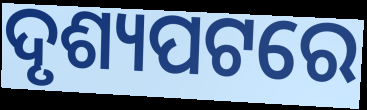
ଦୃଶ୍ୟପଟରେ